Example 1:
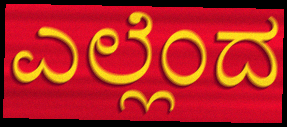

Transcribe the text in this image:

ಎಲ್ಲೆಂದ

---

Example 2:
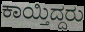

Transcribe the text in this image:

ಕಾಯ್ತಿದ್ದರು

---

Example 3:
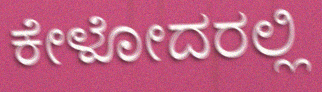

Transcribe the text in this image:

ಕೇಳೋದರಲ್ಲಿ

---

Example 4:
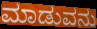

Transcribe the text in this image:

ಮಾಡುವನು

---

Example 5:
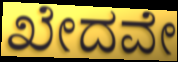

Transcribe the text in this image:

ಖೇದವೇ